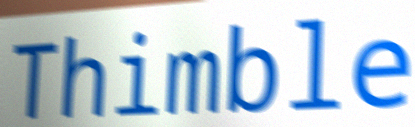
Thimble